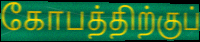
கோபத்திற்குப்